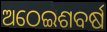
ଅଠେଇଶବର୍ଷ